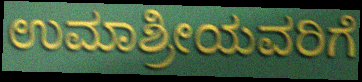
ಉಮಾಶ್ರೀಯವರಿಗೆ